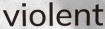
violent